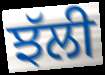
ਝੱਲੀ